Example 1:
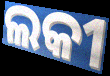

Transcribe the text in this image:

ଲକୀ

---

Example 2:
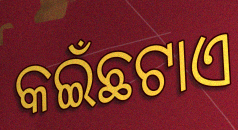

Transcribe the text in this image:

କଇଁଛଟାଏ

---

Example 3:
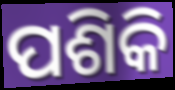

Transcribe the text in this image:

ପଶିକି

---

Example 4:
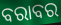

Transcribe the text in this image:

ବରାବର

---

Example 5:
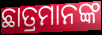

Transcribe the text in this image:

ଛାତ୍ରମାନଙ୍କ